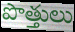
పొత్తులు